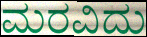
ಮರವಿದು